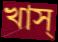
খাস্